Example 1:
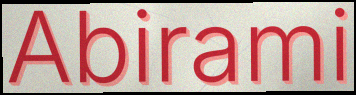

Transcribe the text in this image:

Abirami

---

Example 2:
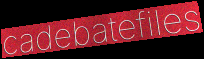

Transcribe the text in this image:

cadebatefiles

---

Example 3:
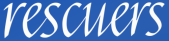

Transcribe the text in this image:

rescuers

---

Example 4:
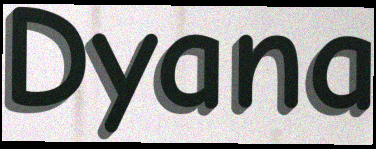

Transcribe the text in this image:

Dyana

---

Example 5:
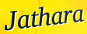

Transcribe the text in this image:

Jathara